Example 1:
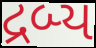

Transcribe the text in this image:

દ્રબ્ય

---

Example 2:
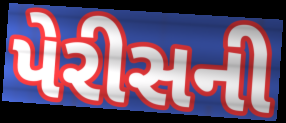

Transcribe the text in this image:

પેરીસની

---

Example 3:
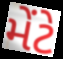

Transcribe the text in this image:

મેંટે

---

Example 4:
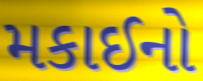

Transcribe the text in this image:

મકાઈનો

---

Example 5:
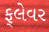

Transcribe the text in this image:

ફ્‌લેવર